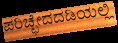
ಪರಿಚ್ಛೇದದಡಿಯಲ್ಲಿ